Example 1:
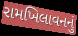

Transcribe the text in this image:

રામખિલાવનનું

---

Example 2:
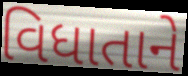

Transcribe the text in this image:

વિધાતાને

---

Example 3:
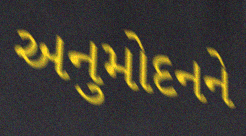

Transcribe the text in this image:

અનુમોદનને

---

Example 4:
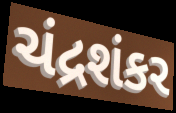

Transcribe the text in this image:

ચંદ્રશંકર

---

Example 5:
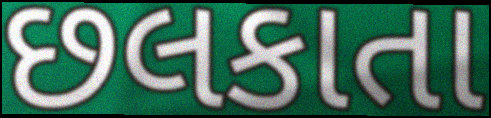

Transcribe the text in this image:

છલકાતા